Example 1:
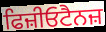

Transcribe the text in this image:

ਫਿਜ਼ੀਓਟੈਨਜ਼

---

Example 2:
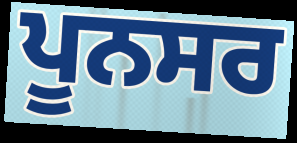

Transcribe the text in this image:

ਪੂਨਸਰ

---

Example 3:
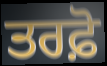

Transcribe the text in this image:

ਤਰਫ਼ੋ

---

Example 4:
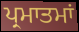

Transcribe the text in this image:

ਪ੍ਰਮਾਤਮਾਂ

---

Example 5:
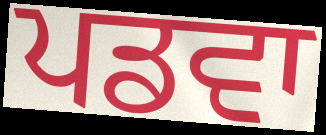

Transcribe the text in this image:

ਪਡਵਾ